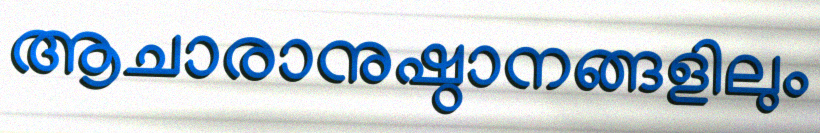
ആചാരാനുഷ്ഠാനങ്ങളിലും